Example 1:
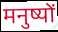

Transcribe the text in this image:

मनुष्यों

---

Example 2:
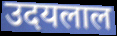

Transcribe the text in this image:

उदयलाल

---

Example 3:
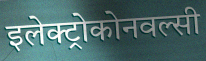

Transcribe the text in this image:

इलेक्ट्रोकोनवल्सी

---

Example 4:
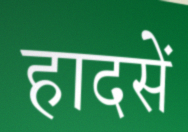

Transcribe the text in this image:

हादसें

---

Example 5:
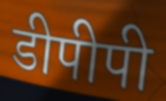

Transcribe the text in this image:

डीपीपी